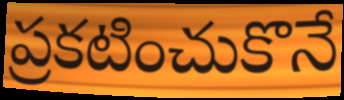
ప్రకటించుకొనే